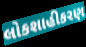
લોકશાહીકરણ